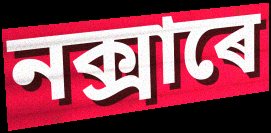
নক্সাৰে